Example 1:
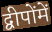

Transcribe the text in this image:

द्वीपोंमें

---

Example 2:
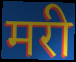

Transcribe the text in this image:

मरी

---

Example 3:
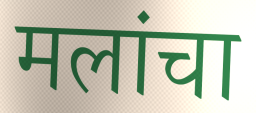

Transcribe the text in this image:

मलांचा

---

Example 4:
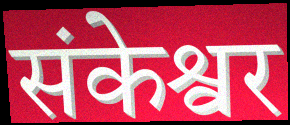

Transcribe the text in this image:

संकेश्वर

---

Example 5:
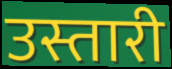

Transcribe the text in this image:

उस्तारी